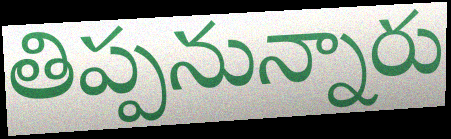
తిప్పనున్నారు